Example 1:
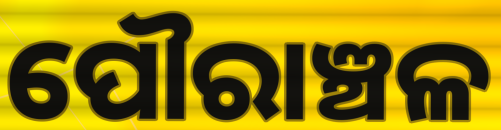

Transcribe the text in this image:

ପୌରାଞ୍ଚଳ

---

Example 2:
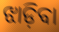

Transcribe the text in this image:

ଝାଡ଼ିବା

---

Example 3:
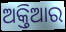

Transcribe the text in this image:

ଅକ୍ତିଆର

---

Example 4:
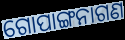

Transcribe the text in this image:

ଗୋପାଙ୍ଗନାଗଣ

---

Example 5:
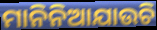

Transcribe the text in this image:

ମାନିନିଆଯାଉଚି